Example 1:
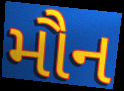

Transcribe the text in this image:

મૌન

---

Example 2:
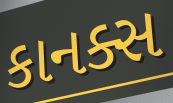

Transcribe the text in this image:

કાનક્સ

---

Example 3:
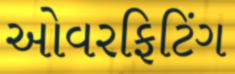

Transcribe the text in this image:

ઓવરફિટિંગ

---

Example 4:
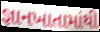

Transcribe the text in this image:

જ્ઞાનખાતામાંથી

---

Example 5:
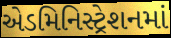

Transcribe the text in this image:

એડમિનિસ્ટ્રેશનમાં